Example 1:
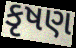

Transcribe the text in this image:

કૃષણ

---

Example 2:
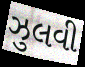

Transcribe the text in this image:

ઝુલવી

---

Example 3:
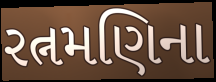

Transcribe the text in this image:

રત્નમણિના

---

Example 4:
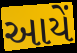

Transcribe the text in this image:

આયેં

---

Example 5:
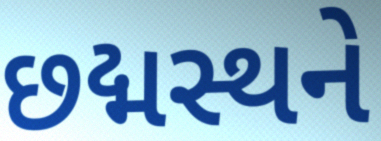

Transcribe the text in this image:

છદ્મસ્થને